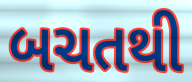
બચતથી